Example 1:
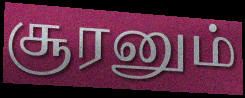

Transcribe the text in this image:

சூரனும்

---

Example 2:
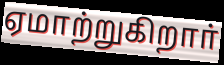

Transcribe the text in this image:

ஏமாற்றுகிறார்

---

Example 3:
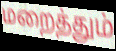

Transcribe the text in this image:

மறைத்தும்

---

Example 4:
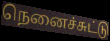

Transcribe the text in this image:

நெனைச்சுட்டு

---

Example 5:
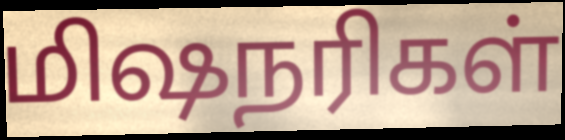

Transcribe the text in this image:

மிஷநரிகள்